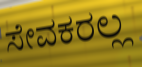
ಸೇವಕರಲ್ಲ